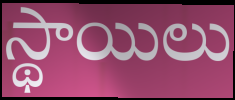
స్థాయిలు